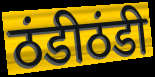
ठंडीठंडी